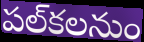
పల్‌కలనుం